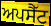
ਅਪਸੈੱਟ